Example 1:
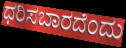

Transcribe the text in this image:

ಧರಿಸಬಾರದೆಂದು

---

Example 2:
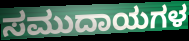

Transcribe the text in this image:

ಸಮುದಾಯಗಳ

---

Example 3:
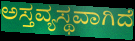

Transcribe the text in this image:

ಅಸ್ತವ್ಯಸ್ಥವಾಗಿದೆ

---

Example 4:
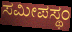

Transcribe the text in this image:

ಸಮೀಪಸ್ಥಂ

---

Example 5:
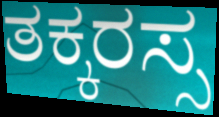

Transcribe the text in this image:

ತಕ್ಕರಸ್ಸ